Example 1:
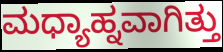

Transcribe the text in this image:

ಮಧ್ಯಾಹ್ನವಾಗಿತ್ತು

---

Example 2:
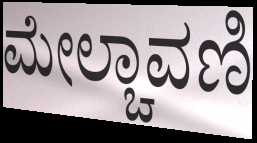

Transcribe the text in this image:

ಮೇಲ್ಚಾವಣಿ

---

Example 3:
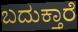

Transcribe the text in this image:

ಬದುಕ್ತಾರೆ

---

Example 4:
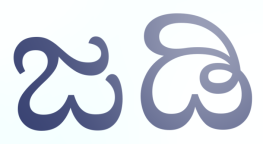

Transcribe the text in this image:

ಜಡಿ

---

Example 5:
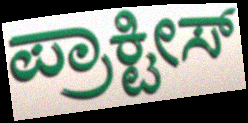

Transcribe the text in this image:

ಪ್ರಾಕ್ಟೀಸ್